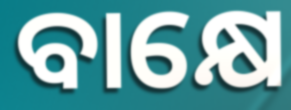
ବାକ୍ଷେ